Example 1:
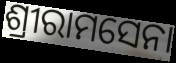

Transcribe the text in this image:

ଶ୍ରୀରାମସେନା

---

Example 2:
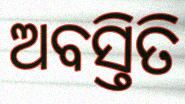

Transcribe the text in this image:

ଅବସ୍ତିତି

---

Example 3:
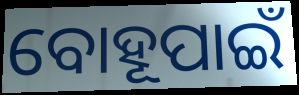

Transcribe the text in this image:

ବୋହୂପାଇଁ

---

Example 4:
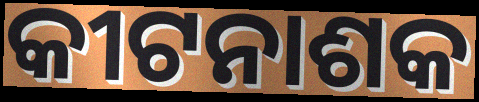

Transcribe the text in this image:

କୀଟନାଶକ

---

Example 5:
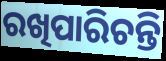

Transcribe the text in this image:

ରଖିପାରିଚନ୍ତି